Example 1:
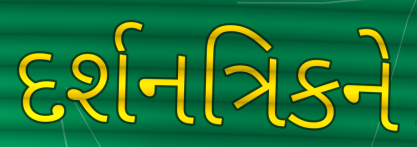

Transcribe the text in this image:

દર્શનત્રિકને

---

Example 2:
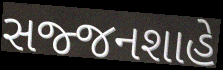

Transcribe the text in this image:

સજ્જનશાહે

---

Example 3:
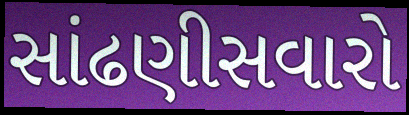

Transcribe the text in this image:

સાંઢણીસવારો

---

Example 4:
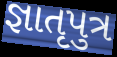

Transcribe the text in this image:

જ્ઞાતૃપુત્ર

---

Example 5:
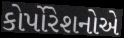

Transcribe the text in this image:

કોર્પોરેશનોએ